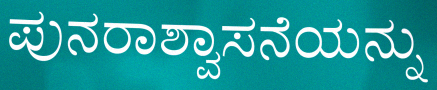
ಪುನರಾಶ್ವಾಸನೆಯನ್ನು